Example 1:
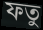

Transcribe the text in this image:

ফতু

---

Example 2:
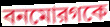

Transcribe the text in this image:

বনমোরগকে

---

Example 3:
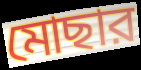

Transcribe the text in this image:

মোছার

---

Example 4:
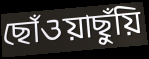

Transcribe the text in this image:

ছোঁওয়াছুঁয়ি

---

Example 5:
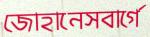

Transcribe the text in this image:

জোহানেসবার্গে